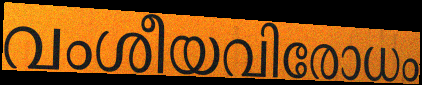
വംശീയവിരോധം